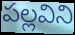
పల్లవిని